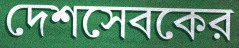
দেশসেবকের